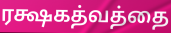
ரக்ஷகத்வத்தை